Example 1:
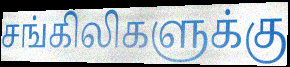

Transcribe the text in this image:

சங்கிலிகளுக்கு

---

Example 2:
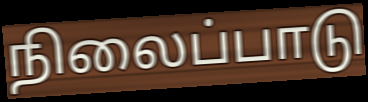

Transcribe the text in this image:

நிலைப்பாடு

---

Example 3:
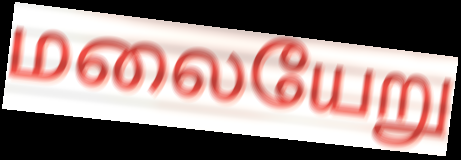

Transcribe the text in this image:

மலையேறு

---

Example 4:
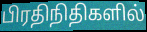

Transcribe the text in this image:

பிரதிநிதிகளில்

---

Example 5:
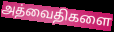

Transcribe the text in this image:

அத்வைதிகளை